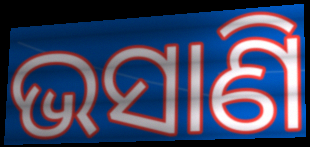
ଭସାଣି